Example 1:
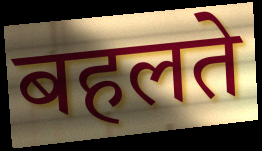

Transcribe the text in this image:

बहलते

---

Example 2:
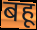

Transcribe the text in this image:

बहू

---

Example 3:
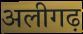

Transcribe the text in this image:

अलीगढ़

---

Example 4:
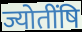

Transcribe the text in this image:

ज्योतींषि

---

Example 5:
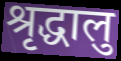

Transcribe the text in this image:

श्रृद्धालु